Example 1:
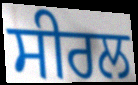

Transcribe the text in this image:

ਸੀਰਲ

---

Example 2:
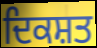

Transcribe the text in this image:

ਦਿਕਸ਼ਤ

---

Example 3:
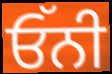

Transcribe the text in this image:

ਓੱਨੀ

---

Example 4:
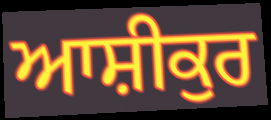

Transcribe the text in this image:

ਆਸ਼ੀਕੁਰ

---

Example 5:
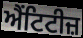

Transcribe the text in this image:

ਐਂਟਿਟੀਜ਼